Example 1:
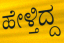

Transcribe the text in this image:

ಹೇಳ್ತಿದ್ದ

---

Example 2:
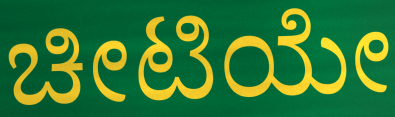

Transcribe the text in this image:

ಚೀಟಿಯೇ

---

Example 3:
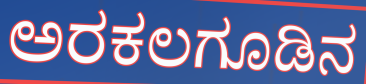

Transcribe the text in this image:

ಅರಕಲಗೂಡಿನ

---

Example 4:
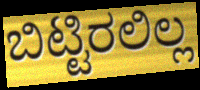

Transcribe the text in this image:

ಬಿಟ್ಟಿರಲಿಲ್ಲ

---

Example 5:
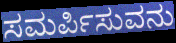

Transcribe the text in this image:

ಸಮರ್ಪಿಸುವನು